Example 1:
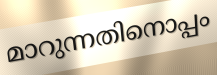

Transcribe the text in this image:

മാറുന്നതിനൊപ്പം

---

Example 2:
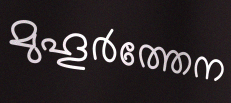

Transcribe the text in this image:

മുഹൂർത്തേന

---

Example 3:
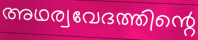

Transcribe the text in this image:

അഥര്വവേദത്തിന്റെ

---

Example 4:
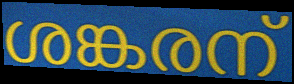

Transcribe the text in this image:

ശങ്കരന്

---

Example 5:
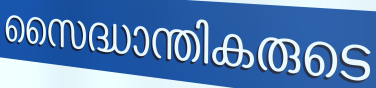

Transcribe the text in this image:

സൈദ്ധാന്തികരുടെ